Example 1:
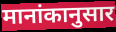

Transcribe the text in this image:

मानांकानुसार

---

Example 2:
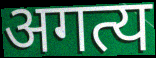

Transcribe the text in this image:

अगत्य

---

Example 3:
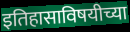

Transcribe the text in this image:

इतिहासाविषयीच्या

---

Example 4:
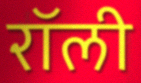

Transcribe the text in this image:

रॉली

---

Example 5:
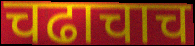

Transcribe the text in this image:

चढाचाच